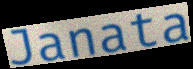
Janata